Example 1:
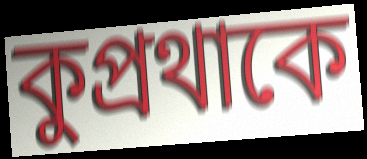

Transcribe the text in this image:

কুপ্রথাকে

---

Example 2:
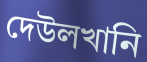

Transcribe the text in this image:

দেউলখানি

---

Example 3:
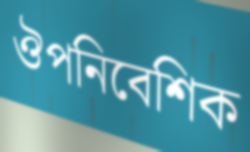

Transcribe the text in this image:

ঔপনিবেশিক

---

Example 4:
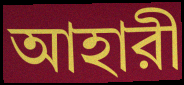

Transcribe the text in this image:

আহারী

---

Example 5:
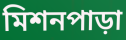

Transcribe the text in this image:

মিশনপাড়া